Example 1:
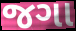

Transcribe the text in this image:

જગા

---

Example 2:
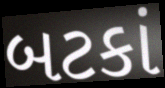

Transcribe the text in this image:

બટકાં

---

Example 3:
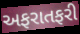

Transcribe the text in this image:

અફરાતફરી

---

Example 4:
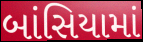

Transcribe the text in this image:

બાંસિયામાં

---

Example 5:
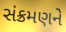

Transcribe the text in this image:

સંક્રમણને